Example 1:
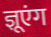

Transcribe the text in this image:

ज्ञूएंग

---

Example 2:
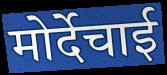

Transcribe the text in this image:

मोर्देचाई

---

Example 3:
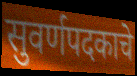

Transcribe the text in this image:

सुवर्णपदकाचे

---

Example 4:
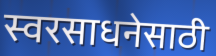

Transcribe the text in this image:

स्वरसाधनेसाठी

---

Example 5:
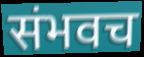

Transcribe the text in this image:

संभवच